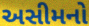
અસીમનો